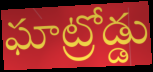
ఘాట్రోడ్డు